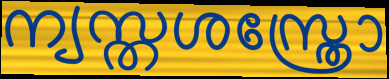
ന്യസ്തശസ്ത്രോ